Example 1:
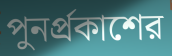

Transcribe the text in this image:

পুনর্প্রকাশের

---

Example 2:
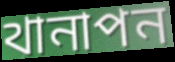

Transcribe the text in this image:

থানাপন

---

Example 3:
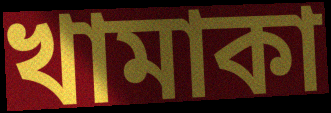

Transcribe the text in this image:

খামাকা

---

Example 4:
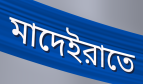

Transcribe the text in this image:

মাদেইরাতে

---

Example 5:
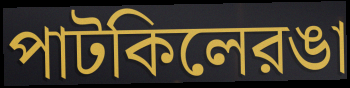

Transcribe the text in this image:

পাটকিলেরঙা